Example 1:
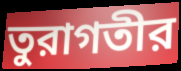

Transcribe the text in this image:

তুরাগতীর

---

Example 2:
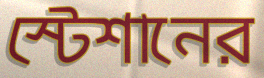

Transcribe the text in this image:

স্টেশানের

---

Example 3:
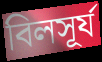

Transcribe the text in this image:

বিলসূর্য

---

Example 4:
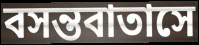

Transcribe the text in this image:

বসন্তবাতাসে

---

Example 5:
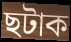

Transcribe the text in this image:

ছটাক